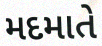
મદમાતે